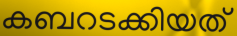
കബറടക്കിയത്